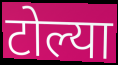
टोल्या